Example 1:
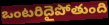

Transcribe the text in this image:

ఒంటరిదైపోతుంది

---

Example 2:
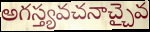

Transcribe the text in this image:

అగస్త్యవచనాచ్చైవ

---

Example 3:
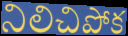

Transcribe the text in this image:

నిలిచిపోక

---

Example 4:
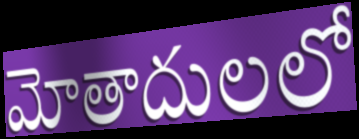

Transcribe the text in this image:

మోతాదులలో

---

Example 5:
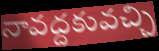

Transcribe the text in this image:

నావద్దకువచ్చి